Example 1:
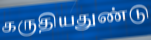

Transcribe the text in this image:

கருதியதுண்டு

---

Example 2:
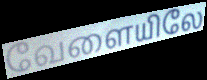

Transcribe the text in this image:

வேளையிலே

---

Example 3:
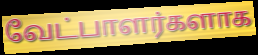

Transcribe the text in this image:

வேட்பாளர்களாக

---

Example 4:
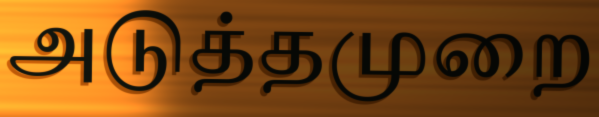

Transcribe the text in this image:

அடுத்தமுறை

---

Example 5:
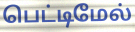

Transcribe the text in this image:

பெட்டிமேல்